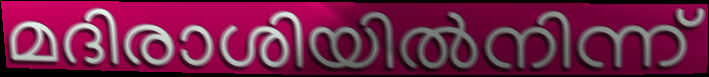
മദിരാശിയിൽനിന്ന്